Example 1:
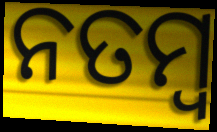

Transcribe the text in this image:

ନତମ୍ବ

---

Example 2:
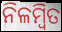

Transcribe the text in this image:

ନିଳମ୍ବିତ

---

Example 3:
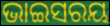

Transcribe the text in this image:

ଭାଇସରୟ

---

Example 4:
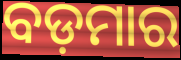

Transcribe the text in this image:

ବଡ଼ମାର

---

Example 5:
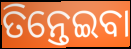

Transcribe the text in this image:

ତିନ୍ତେଇବା